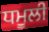
ਧਮੂਲੀ